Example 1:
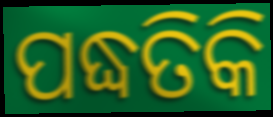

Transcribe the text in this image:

ପଦ୍ଧତିକି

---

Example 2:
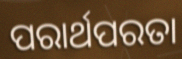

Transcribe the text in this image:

ପରାର୍ଥପରତା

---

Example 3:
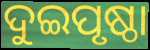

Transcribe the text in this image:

ଦୁଇପୃଷ୍ଠା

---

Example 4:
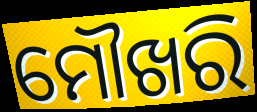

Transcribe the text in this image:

ମୌଖରି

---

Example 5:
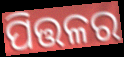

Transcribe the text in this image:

ପିତ୍ତଳର